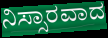
ನಿಸ್ಸಾರವಾದ